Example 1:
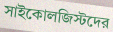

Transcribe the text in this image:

সাইকোলজিস্টদের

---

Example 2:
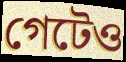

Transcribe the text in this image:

গেটেও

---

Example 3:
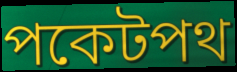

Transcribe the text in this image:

পকেটপথ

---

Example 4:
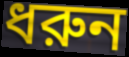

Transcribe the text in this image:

ধরুন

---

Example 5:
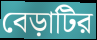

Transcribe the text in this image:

বেড়াটির